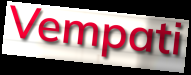
Vempati